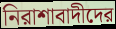
নিরাশাবাদীদের